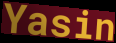
Yasin